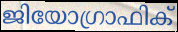
ജിയോഗ്രാഫിക്